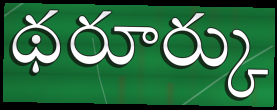
థరూర్కు